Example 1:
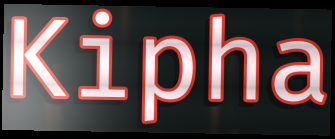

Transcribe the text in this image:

Kipha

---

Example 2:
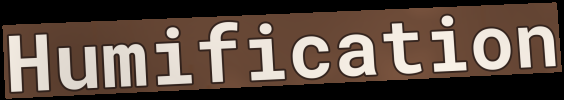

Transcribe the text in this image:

Humification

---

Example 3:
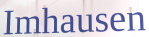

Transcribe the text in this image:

Imhausen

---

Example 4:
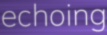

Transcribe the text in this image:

echoing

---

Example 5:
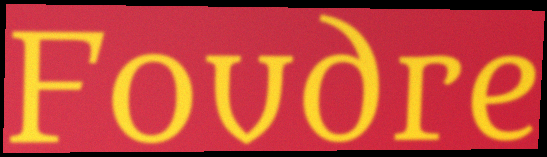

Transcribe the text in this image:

Foudre